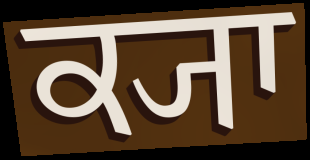
ਕ੍ਯਾ